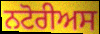
ਨਟੋਰੀਅਸ